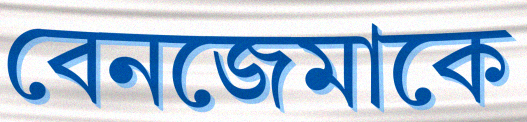
বেনজেমাকে